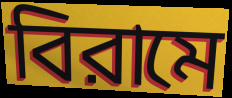
বিরামে